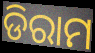
ଡିରାମ